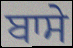
ਬਾਸੇ